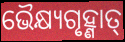
ଭୈକ୍ଷ୍ୟଗୃହ୍ଣାତ୍